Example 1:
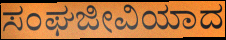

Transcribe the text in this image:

ಸಂಘಜೀವಿಯಾದ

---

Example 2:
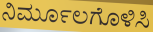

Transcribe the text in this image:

ನಿರ್ಮೂಲಗೊಳಿಸಿ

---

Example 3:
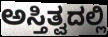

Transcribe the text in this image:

ಅಸ್ತಿತ್ವದಲ್ಲಿ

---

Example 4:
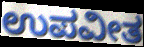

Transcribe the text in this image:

ಉಪವೀತ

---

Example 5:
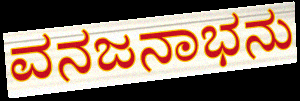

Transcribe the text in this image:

ವನಜನಾಭನು